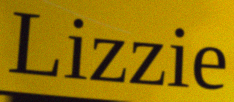
Lizzie